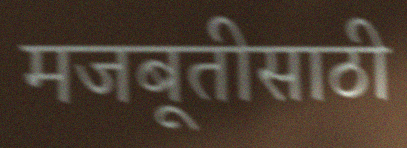
मजबूतीसाठी